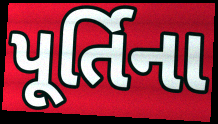
પૂર્તિના